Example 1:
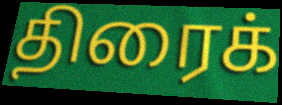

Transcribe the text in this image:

திரைக்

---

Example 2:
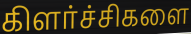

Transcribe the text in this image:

கிளர்ச்சிகளை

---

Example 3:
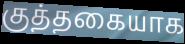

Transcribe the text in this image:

குத்தகையாக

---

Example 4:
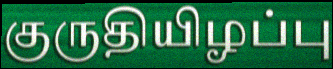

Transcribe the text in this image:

குருதியிழப்பு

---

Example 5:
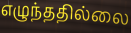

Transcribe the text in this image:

எழுந்ததில்லை